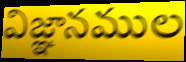
విజ్ఞానముల